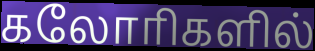
கலோரிகளில்